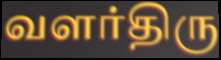
வளர்திரு